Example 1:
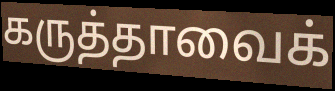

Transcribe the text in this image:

கருத்தாவைக்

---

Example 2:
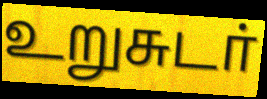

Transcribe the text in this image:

உறுசுடர்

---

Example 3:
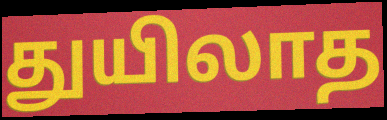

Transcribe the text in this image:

துயிலாத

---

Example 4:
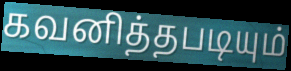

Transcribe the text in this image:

கவனித்தபடியும்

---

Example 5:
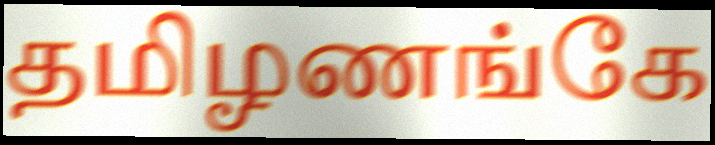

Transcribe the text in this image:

தமிழணங்கே